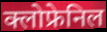
क्लोफ्रेनिल